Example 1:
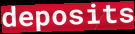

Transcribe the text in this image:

deposits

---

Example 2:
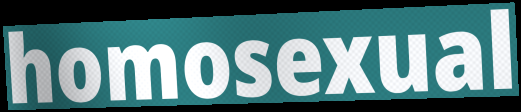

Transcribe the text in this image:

homosexual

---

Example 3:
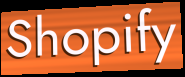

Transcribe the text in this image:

Shopify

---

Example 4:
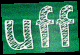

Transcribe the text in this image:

uff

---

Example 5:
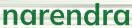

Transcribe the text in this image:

narendra